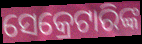
ସେକ୍ରେଟାରିଙ୍କ